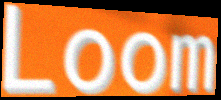
Loom